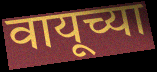
वायूच्या